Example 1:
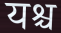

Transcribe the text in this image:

यश्च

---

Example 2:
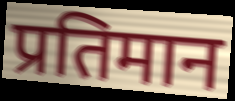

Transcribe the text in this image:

प्रतिमान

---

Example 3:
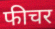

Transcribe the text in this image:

फीचर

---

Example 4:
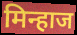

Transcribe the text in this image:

मिन्हाज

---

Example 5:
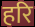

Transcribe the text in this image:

हरि